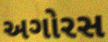
અગોરસ